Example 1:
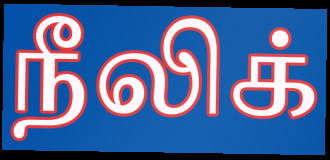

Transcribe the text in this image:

நீலிக்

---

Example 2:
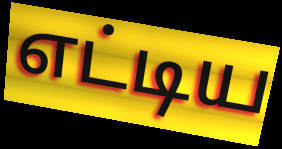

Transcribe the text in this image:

எட்டிய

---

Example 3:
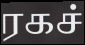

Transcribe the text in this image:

ரகச்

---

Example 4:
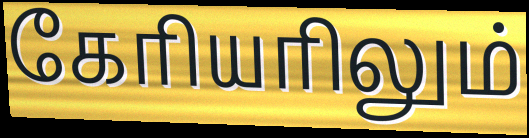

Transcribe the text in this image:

கேரியரிலும்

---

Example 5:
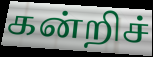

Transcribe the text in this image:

கன்றிச்